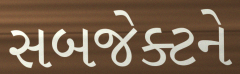
સબજેક્ટને